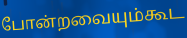
போன்றவையும்கூட